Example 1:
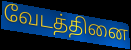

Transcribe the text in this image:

வேடத்தினை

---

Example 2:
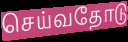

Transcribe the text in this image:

செய்வதோடு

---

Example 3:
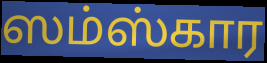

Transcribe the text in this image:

ஸம்ஸ்கார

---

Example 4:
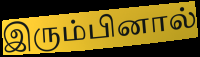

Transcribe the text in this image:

இரும்பினால்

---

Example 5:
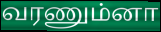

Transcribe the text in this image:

வரணும்னா